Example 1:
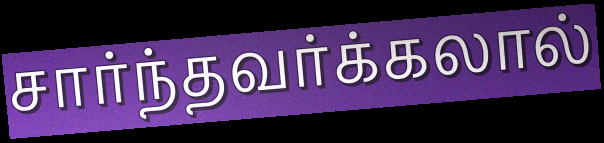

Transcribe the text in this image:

சார்ந்தவர்க்கலால்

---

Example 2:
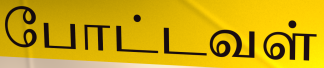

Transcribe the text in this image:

போட்டவள்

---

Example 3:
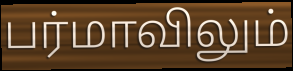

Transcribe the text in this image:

பர்மாவிலும்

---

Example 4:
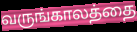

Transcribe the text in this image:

வருங்காலத்தை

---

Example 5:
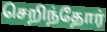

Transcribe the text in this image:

செறிந்தோர்